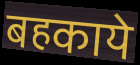
बहकाये